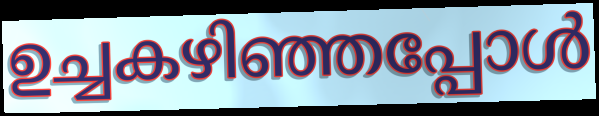
ഉച്ചകഴിഞ്ഞപ്പോൾ